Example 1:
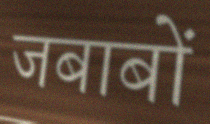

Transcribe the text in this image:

जबाबों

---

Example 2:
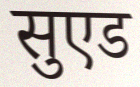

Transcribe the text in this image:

सुएड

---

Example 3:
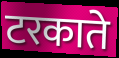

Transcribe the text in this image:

टरकाते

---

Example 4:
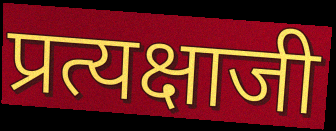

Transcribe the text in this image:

प्रत्यक्षाजी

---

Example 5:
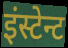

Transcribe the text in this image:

इंस्टेन्ट